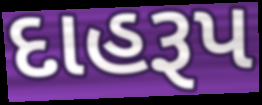
દાહરૂપ